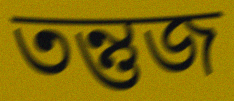
তন্তুজ